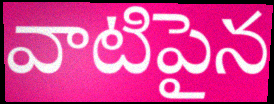
వాటిపైన